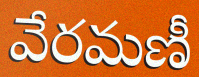
వేరమణీ